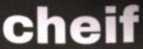
cheif